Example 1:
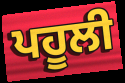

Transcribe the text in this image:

ਪਹੂਲੀ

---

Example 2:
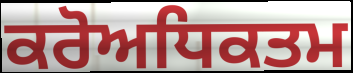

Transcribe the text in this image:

ਕਰੋਅਧਿਕਤਮ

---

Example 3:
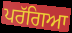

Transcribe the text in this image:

ਪਰੱਗਿਆ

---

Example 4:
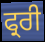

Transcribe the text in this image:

ਫ੍ਰਰੀ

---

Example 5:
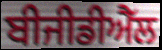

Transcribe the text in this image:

ਬੀਜੀਡੀਐੱਲ